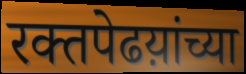
रक्तपेढय़ांच्या